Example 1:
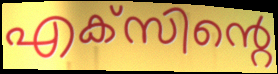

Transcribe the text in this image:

എക്‌സിന്റെ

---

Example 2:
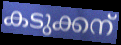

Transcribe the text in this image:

കടുക്കന്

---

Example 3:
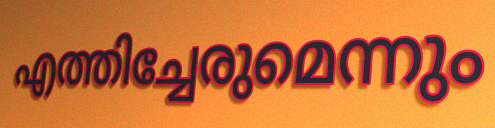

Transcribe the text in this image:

എത്തിച്ചേരുമെന്നും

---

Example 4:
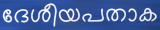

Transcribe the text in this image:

ദേശീയപതാക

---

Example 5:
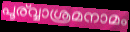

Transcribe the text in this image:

പൂര്വ്വാശ്രമനാമം